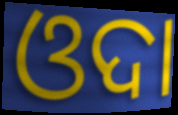
ଓଦା